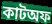
কাটঅফ